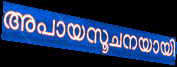
അപായസൂചനയായി